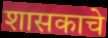
शासकाचे